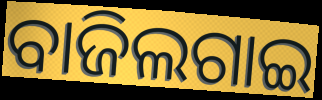
ବାଜିଲଗାଇ